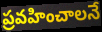
ప్రవహించాలనే